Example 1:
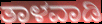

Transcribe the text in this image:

ತಾಳವಾಡಿ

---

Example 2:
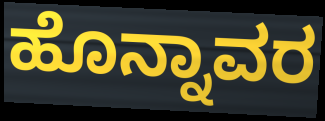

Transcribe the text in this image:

ಹೊನ್ನಾವರ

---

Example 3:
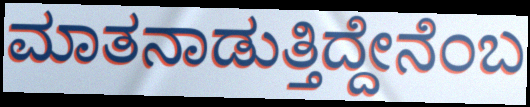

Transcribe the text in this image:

ಮಾತನಾಡುತ್ತಿದ್ದೇನೆಂಬ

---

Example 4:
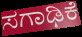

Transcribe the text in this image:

ಸಗಾಢಿಕೆ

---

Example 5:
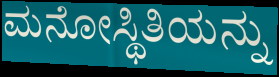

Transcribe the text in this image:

ಮನೋಸ್ಥಿತಿಯನ್ನು